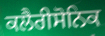
ਕਲੈਰੀਸੋਨਿਕ